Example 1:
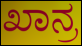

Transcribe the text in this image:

ಖಾನ್ರ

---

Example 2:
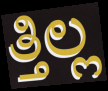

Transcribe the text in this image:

ತ್ತಿಲ್ಲ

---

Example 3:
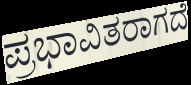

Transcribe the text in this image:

ಪ್ರಭಾವಿತರಾಗದೆ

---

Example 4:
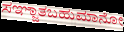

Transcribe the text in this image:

ಸಞ್ಜಾತಬಹುಮಾನೋ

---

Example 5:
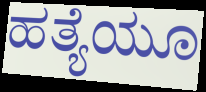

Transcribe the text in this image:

ಹತ್ಯೆಯೂ